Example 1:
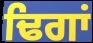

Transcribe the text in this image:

ਢਿਗਾਂ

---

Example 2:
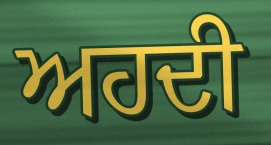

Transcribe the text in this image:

ਅਹਦੀ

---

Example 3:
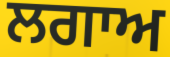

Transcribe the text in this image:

ਲਗਾਅ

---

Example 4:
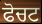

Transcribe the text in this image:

ਫੋਚਟ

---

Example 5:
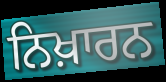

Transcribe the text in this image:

ਨਿਖ਼ਾਰਨ